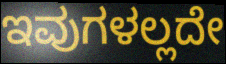
ಇವುಗಳಲ್ಲದೇ